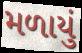
મળાયું